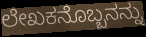
ಲೇಖಕನೊಬ್ಬನನ್ನು